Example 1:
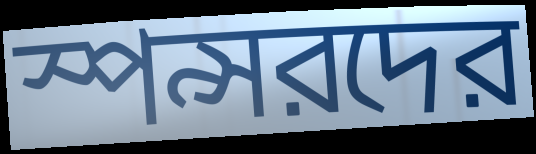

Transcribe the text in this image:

স্পন্সরদের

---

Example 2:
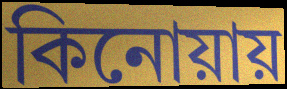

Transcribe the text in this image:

কিনোয়ায়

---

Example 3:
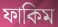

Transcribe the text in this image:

ফাকিম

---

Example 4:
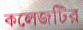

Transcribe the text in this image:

কলেজটির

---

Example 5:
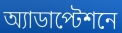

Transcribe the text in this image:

অ্যাডাপ্টেশনে